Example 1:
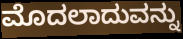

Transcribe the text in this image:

ಮೊದಲಾದುವನ್ನು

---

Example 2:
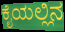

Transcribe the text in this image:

ಕೈಯಲ್ಲಿನ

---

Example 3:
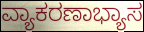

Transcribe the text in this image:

ವ್ಯಾಕರಣಾಭ್ಯಾಸ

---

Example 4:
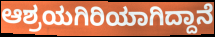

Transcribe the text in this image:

ಆಶ್ರಯಗಿರಿಯಾಗಿದ್ದಾನೆ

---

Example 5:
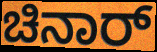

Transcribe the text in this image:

ಚಿನಾರ್